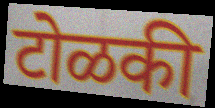
टोळकी